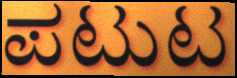
ಪಟುಟ